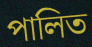
পালিত